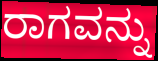
ರಾಗವನ್ನು